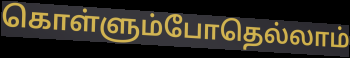
கொள்ளும்போதெல்லாம்